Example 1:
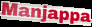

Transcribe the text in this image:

Manjappa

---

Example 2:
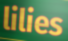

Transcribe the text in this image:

lilies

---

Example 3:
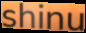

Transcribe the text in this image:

shinu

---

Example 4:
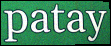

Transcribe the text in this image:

patay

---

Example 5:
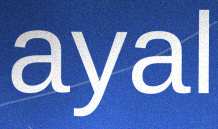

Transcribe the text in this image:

ayal